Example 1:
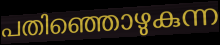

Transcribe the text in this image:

പതിഞ്ഞൊഴുകുന്ന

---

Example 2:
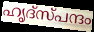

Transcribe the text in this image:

ഹൃദ്സ്പന്ദം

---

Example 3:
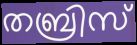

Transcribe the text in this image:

തബ്രിസ്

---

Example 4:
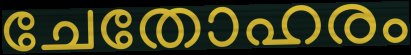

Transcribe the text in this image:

ചേതോഹരം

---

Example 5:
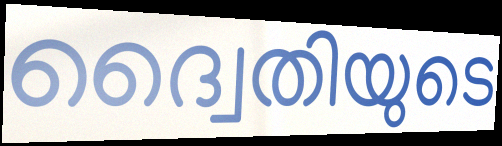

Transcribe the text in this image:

ദ്വൈതിയുടെ